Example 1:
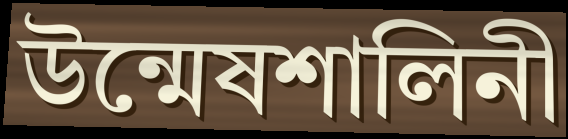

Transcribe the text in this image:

উন্মেষশালিনী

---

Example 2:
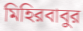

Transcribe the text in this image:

মিহিরবাবুর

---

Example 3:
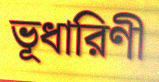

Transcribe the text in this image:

ভূধারিণী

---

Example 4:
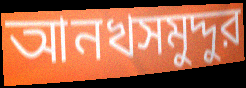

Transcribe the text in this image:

আনখসমুদ্দুর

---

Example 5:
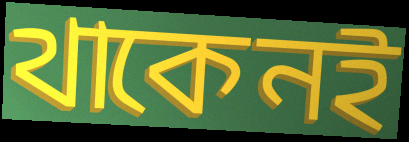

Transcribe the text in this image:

থাকেনই